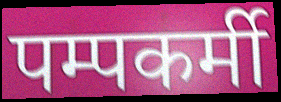
पम्पकर्मी